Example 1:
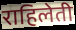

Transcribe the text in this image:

राहिलेती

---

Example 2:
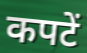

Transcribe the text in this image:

कपटें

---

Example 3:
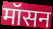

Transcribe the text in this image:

मॉसन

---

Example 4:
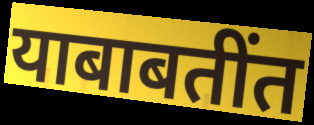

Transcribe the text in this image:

याबाबतींत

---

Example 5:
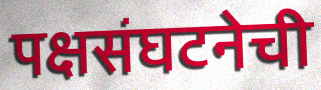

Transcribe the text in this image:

पक्षसंघटनेची